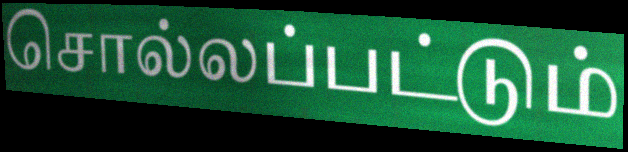
சொல்லப்பட்டும்